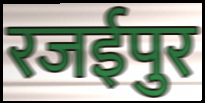
रजईपुर